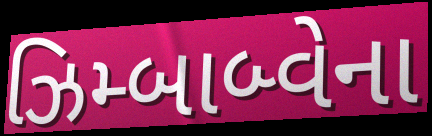
ઝિમ્બાબ્વેના